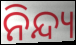
ନିନ୍ଦ୍ୟ